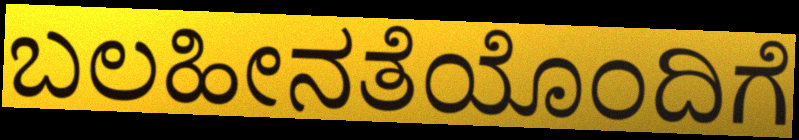
ಬಲಹೀನತೆಯೊಂದಿಗೆ